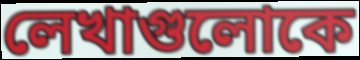
লেখাগুলোকে